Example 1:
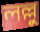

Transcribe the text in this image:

লল্লু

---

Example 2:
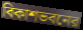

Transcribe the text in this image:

বিকাশভবনের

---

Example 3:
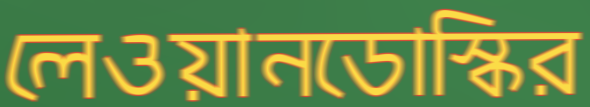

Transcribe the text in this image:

লেওয়ানডোস্কির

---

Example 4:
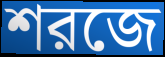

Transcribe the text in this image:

শরজে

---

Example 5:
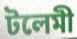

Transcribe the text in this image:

টলেমী